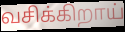
வசிக்கிறாய்